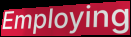
Employing